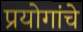
प्रयोगांचे